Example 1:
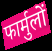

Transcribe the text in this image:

फार्मुलों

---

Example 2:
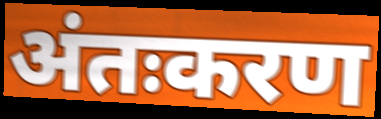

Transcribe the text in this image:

अंतःकरण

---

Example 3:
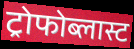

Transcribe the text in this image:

ट्रोफोब्लास्ट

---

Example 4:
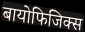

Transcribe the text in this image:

बायोफिजिक्स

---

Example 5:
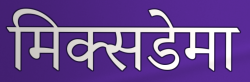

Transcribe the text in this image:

मिक्सडेमा